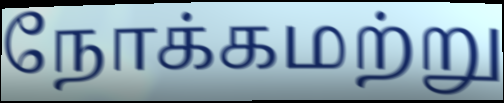
நோக்கமற்று